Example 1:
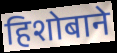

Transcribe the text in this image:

हिशोबाने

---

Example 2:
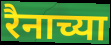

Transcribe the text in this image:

रैनाच्या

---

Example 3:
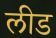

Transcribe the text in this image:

लीड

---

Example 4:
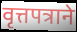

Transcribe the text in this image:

वृत्तपत्राने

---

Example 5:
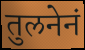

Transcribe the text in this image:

तुलनेनं